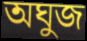
অঘুজ